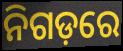
ନିଗଡ଼ରେ